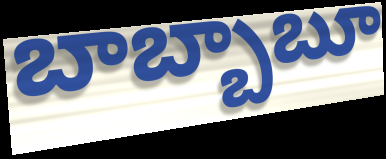
బాబ్బాబూ